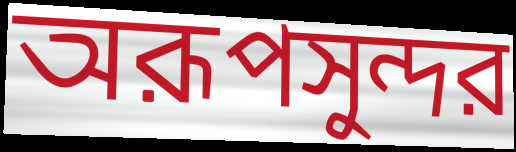
অরূপসুন্দর